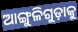
ଆଙ୍ଗୁଳିଗୁଡ଼ାକୁ